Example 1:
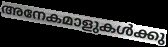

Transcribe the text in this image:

അനേകമാളുകൾക്കു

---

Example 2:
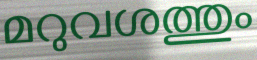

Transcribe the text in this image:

മറുവശത്തും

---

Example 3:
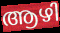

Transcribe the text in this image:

ആഴി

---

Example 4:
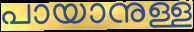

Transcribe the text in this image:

പായാനുള്ള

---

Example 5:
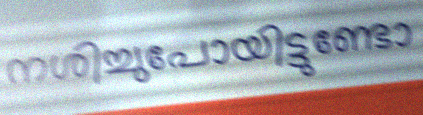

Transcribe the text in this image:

നശിച്ചുപോയിട്ടുണ്ടോ